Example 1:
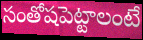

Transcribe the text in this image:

సంతోషపెట్టాలంటే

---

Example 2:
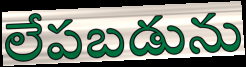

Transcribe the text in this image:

లేపబడును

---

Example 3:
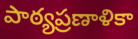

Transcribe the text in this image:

పాఠ్యప్రణాళికా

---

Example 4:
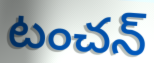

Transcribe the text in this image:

టంచన్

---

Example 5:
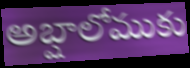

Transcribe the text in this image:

అబ్షాలోముకు